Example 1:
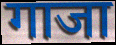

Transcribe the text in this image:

गाजा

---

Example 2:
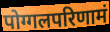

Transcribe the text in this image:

पोग्गलपरिणामं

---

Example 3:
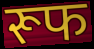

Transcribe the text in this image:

रूफ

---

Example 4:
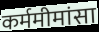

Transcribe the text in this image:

कर्ममीमांसा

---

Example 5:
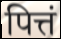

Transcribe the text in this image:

पित्तं